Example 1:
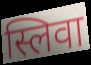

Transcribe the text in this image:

स्लिवा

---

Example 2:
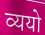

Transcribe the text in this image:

व्ययो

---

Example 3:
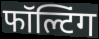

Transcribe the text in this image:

फॉल्टिंग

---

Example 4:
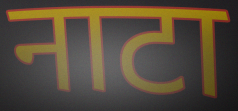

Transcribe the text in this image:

नाटा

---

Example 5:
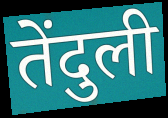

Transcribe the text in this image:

तेंदुली